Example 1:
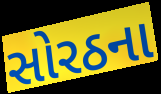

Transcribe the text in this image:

સોરઠના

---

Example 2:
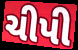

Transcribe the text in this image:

ચીપી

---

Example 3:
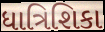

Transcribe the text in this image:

ધાત્રિશિકા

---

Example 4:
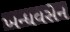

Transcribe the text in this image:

ખન્ધવસેન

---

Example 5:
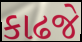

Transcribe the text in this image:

કાઢજે